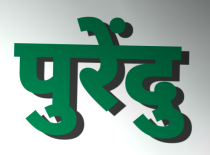
पुरेंदु